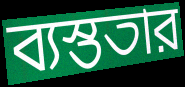
ব্যস্ততার